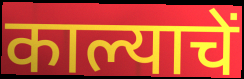
काल्याचें